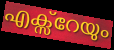
എക്സ്റേയും